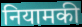
नियामकी